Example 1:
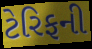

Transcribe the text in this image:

ટેરિફની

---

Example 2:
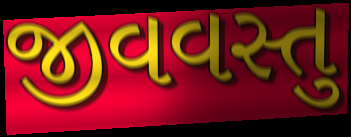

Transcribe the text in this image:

જીવવસ્તુ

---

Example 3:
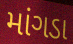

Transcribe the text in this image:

માંગડા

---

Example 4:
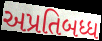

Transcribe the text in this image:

અપ્રતિબધ્ધ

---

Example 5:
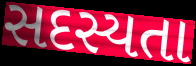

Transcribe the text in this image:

સદસ્યતા